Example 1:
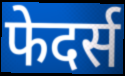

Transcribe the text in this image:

फेदर्स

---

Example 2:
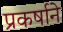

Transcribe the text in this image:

प्रकर्षाने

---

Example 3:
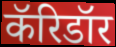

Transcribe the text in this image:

कॅरिडॉर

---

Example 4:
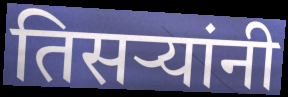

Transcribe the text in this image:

तिसऱ्यांनी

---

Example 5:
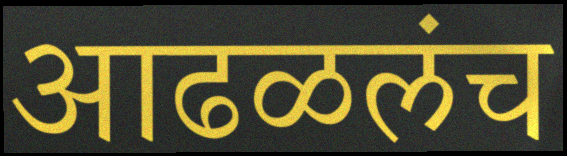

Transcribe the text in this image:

आढळलंच